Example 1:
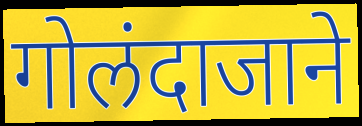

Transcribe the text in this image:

गोलंदाजाने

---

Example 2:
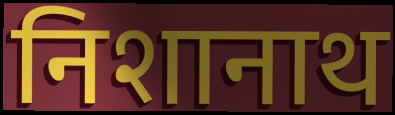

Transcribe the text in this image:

निशानाथ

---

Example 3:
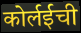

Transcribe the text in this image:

कोर्लईची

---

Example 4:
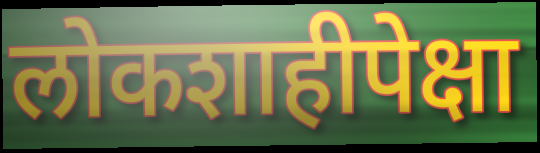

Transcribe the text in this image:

लोकशाहीपेक्षा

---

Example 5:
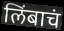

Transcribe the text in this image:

लिंबाचं